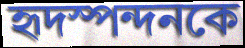
হৃদস্পন্দনকে